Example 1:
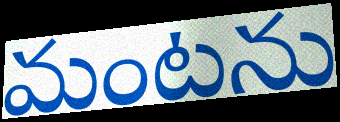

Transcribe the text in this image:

మంటను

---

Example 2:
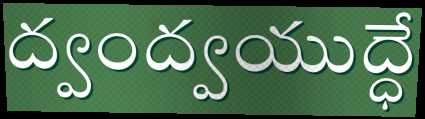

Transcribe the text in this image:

ద్వంద్వయుద్ధే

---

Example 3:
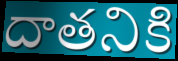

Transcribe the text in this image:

దాతనికి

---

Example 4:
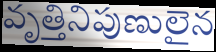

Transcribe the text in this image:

వృత్తినిపుణులైన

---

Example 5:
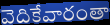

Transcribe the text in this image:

వెదికేవారంతా